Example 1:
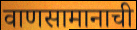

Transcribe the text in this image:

वाणसामानाची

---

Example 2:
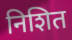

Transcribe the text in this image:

निशित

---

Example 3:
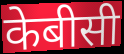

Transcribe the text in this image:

केबीसी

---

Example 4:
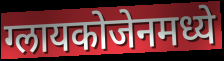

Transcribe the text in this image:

ग्लायकोजेनमध्ये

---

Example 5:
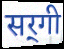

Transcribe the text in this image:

सर्गी